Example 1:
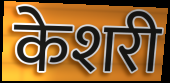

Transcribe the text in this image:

केशरी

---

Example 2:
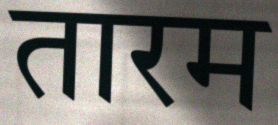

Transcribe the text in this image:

तारम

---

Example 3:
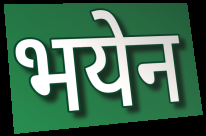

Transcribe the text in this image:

भयेन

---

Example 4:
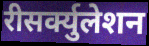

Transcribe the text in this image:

रीसर्क्युलेशन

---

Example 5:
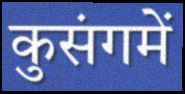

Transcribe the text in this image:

कुसंगमें